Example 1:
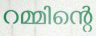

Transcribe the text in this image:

റമ്മിന്റെ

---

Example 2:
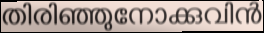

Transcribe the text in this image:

തിരിഞ്ഞുനോക്കുവിൻ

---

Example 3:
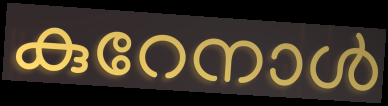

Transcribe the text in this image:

കുറേനാൾ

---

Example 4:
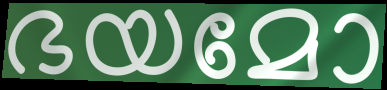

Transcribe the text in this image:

ഭയമോ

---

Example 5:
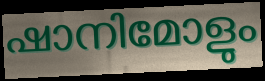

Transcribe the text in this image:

ഷാനിമോളും